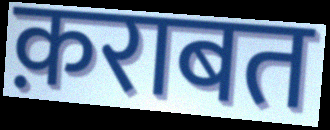
क़राबत